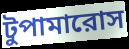
টুপামারোস